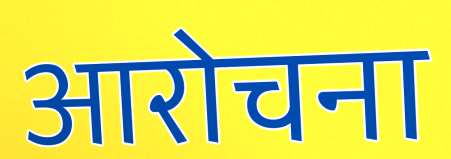
आरोचना